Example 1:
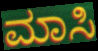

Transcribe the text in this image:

ಮಾಸಿ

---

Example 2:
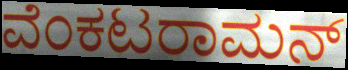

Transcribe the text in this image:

ವೆಂಕಟರಾಮನ್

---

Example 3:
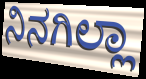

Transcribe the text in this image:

ನಿನಗಿಲ್ಲಾ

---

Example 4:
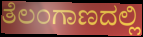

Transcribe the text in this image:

ತೆಲಂಗಾಣದಲ್ಲಿ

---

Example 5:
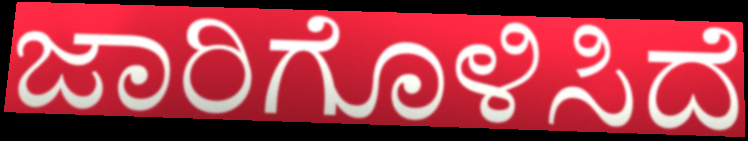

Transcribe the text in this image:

ಜಾರಿಗೊಳಿಸಿದೆ